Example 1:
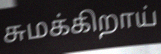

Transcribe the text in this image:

சுமக்கிறாய்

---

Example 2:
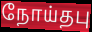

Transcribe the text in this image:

நோய்தபு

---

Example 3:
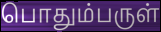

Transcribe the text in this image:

பொதும்பருள்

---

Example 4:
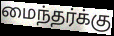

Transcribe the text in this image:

மைந்தர்க்கு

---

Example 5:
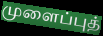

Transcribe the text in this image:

முளைப்புத்